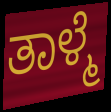
ತಾಳ್ಮೆ